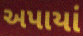
અપાયાં